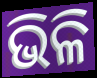
ଭିଳି